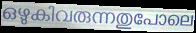
ഒഴുകിവരുന്നതുപോലെ